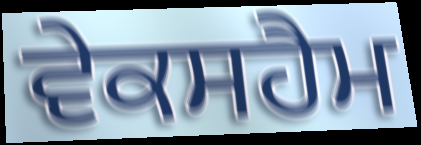
ਵੇਕਸਹੈਮ